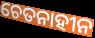
ଚେତନାହୀନ